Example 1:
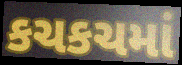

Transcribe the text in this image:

કચકચમાં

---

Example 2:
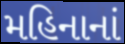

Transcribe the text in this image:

મહિનાનાં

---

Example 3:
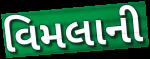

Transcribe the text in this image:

વિમલાની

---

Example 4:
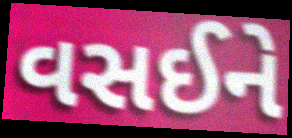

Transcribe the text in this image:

વસઈને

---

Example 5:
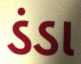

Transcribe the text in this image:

ડંડા